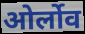
ओर्लोव